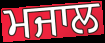
ਮਜਾਲ